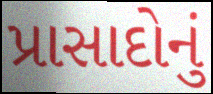
પ્રાસાદોનું